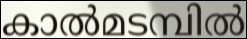
കാൽമടമ്പിൽ